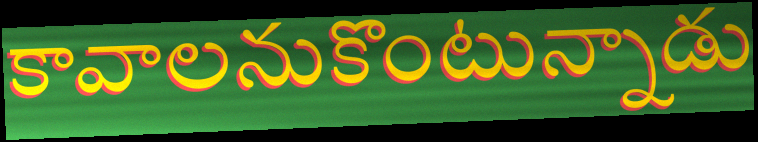
కావాలనుకొంటున్నాడు